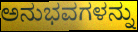
ಅನುಭವಗಳನ್ನು